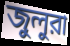
জুলুরা